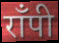
राँपी